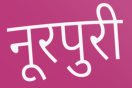
नूरपुरी